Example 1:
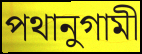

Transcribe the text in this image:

পথানুগামী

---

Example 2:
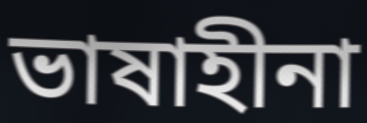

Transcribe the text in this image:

ভাষাহীনা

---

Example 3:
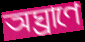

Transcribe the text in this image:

অঘ্রাণে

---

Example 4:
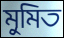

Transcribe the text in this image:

মুমিত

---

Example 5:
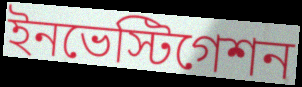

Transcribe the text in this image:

ইনভেস্টিগেশন